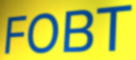
FOBT